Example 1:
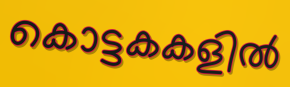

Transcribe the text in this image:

കൊട്ടകകളിൽ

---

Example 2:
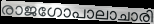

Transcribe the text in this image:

രാജഗോപാലാചാരി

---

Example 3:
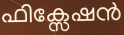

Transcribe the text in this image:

ഫിക്സേഷൻ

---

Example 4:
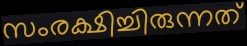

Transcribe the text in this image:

സംരക്ഷിച്ചിരുന്നത്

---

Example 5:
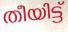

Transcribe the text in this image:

തീയിട്ട്